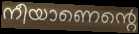
നീയാണെന്റെ